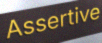
Assertive